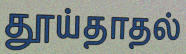
தூய்தாதல்